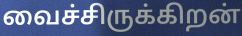
வைச்சிருக்கிறன்